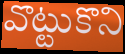
వొట్టుకొని